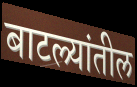
बाटल्यांतील